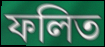
ফলিত